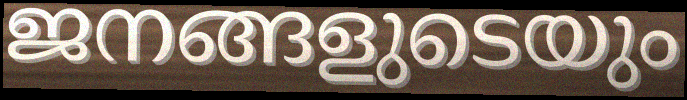
ജനങ്ങളുടെയും